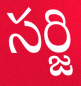
సర్జి